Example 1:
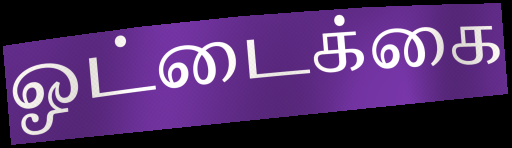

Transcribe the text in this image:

ஓட்டைக்கை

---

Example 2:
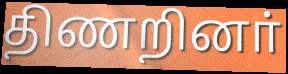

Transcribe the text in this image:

திணறினர்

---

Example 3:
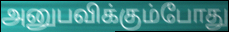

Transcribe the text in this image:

அனுபவிக்கும்போது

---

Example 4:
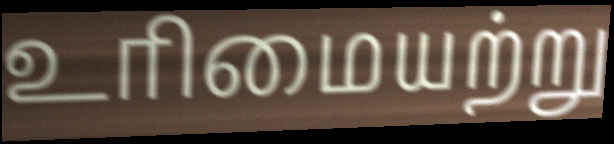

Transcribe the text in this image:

உரிமையற்று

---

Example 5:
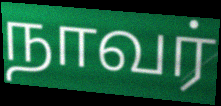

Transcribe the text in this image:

நாவர்